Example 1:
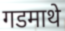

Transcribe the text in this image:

गडमाथे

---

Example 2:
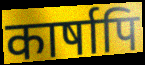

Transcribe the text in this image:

कार्षापि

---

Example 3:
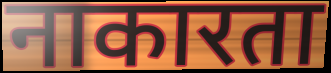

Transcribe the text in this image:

नाकारता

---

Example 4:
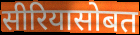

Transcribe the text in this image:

सीरियासोबत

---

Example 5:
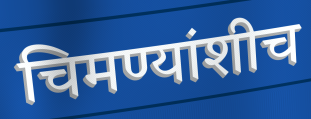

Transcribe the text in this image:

चिमण्यांशीच